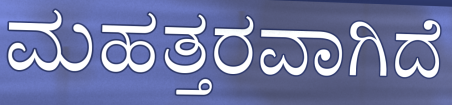
ಮಹತ್ತರವಾಗಿದೆ